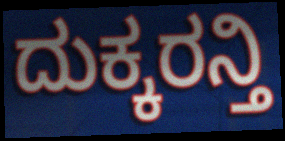
ದುಕ್ಕರನ್ತಿ